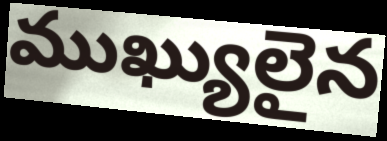
ముఖ్యులైన